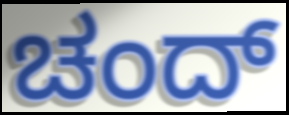
ಚಂದ್